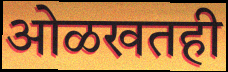
ओळखतही